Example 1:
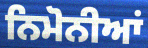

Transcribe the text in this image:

ਨਿਮੋਨੀਆਂ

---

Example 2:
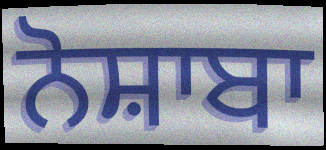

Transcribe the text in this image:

ਨੋਸ਼ਾਬਾ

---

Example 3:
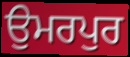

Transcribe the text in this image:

ਉਮਰਪੁਰ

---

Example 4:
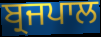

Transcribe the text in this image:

ਬ੍ਰਜਪਾਲ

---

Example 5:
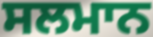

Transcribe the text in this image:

ਸਲਮਾਨ